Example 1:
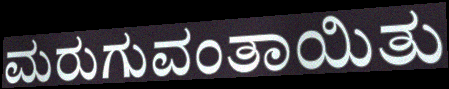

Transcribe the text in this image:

ಮರುಗುವಂತಾಯಿತು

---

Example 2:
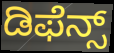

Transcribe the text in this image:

ಡಿಫೆನ್ಸ್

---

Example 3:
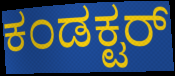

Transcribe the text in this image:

ಕಂಡಕ್ಟರ್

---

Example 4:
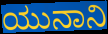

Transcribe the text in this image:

ಯುನಾನಿ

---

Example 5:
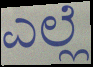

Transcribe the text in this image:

ಎಲ್ಲೆ